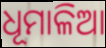
ଧୂମାଳିଆ